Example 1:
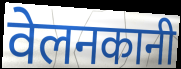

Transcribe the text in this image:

वेलनकानी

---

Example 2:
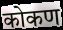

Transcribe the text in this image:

कोकण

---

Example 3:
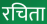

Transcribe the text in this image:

रचिता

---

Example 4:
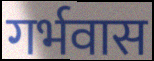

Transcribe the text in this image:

गर्भवास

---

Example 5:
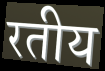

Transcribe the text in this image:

रतीय